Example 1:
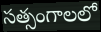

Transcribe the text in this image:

సత్సంగాలలో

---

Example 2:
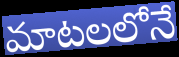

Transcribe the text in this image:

మాటలలోనే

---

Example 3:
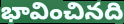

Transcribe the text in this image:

భావించినది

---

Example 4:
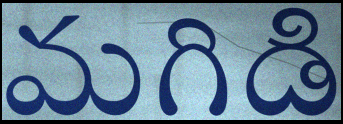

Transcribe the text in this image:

మగిడి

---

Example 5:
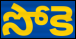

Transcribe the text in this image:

సోకె